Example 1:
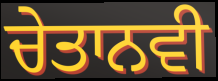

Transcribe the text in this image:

ਚੇਤਾਨਵੀ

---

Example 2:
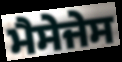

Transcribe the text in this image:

ਮੈਸੇਜੇਸ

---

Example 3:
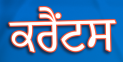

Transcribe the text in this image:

ਕਰੈਂਟਸ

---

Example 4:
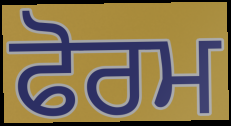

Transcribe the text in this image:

ਫੋਰਮ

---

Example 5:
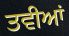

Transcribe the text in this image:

ਤਵੀਆਂ